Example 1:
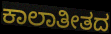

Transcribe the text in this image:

ಕಾಲಾತೀತದ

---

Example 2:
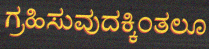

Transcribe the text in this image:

ಗ್ರಹಿಸುವುದಕ್ಕಿಂತಲೂ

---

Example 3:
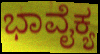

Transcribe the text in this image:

ಭಾವೈಕ್ಯ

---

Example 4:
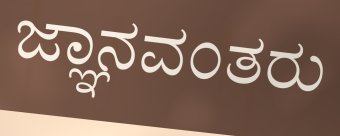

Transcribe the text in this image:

ಜ್ಞಾನವಂತರು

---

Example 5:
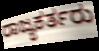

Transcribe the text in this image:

ರಾಜ್ಯಕರ್ತರು